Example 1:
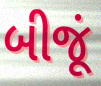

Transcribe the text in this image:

બીજૂં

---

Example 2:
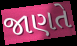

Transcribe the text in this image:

જાણતે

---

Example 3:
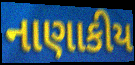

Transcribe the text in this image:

નાણાકીય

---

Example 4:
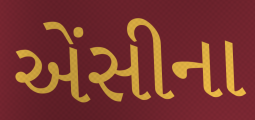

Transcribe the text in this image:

એંસીના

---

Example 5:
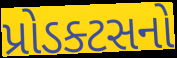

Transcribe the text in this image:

પ્રોડક્ટસનો